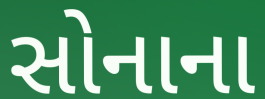
સોનાના